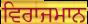
ਵਿਰਾਜਮਾਨ